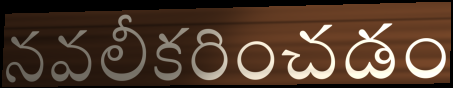
నవలీకరించడం